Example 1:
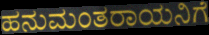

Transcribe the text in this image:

ಹನುಮಂತರಾಯನಿಗೆ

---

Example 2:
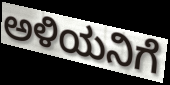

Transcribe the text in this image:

ಅಳಿಯನಿಗೆ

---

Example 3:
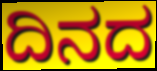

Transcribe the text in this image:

ದಿನದ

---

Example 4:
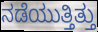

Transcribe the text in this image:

ನಡೆಯುತ್ತಿತ್ತು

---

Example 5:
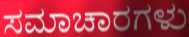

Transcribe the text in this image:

ಸಮಾಚಾರಗಳು